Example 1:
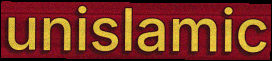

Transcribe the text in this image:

unislamic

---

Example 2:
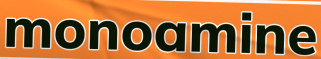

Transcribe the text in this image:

monoamine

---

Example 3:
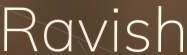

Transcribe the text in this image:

Ravish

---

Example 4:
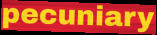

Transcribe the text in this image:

pecuniary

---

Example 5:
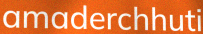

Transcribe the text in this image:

amaderchhuti